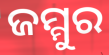
ଜମ୍ମୁର